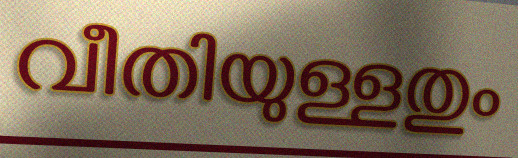
വീതിയുള്ളതും